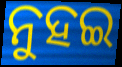
ନୁହଇ